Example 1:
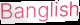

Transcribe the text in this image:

Banglish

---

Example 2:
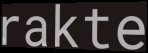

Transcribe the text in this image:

rakte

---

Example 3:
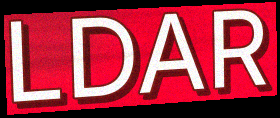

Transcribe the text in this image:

LDAR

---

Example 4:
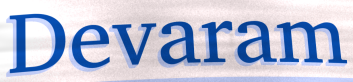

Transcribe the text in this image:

Devaram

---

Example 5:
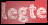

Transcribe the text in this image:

legte